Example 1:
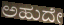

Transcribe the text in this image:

ಅಹುದೇ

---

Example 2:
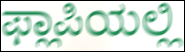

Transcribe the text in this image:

ಫ್ಲಾಪಿಯಲ್ಲಿ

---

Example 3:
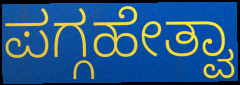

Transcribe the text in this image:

ಪಗ್ಗಹೇತ್ವಾ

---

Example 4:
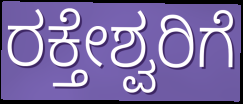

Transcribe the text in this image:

ರಕ್ತೇಶ್ವರಿಗೆ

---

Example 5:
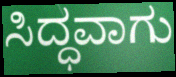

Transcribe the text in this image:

ಸಿದ್ಧವಾಗು